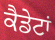
ਕੈਡੇਟਾਂ